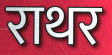
राथर